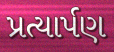
પ્રત્યાર્પણ